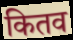
कितव